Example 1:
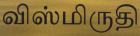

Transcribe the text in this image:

விஸ்மிருதி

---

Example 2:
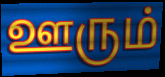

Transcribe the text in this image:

ஊரும்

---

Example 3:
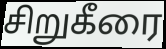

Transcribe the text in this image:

சிறுகீரை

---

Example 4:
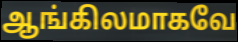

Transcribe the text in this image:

ஆங்கிலமாகவே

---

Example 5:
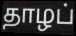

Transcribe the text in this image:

தாழப்